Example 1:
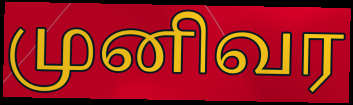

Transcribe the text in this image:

முனிவர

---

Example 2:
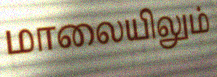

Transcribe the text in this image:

மாலையிலும்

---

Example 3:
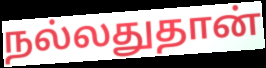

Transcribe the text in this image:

நல்லதுதான்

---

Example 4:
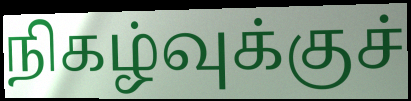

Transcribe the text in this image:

நிகழ்வுக்குச்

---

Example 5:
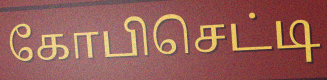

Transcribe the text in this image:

கோபிசெட்டி